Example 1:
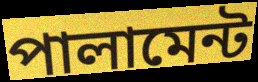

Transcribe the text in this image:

পালামেন্ট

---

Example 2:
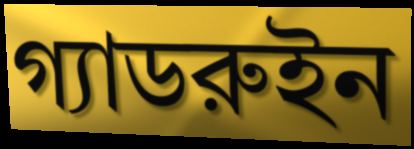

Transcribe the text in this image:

গ্যাডরুইন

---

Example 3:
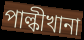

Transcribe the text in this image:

পাল্কীখানা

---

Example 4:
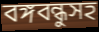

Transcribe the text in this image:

বঙ্গবন্ধুসহ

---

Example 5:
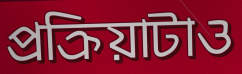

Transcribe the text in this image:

প্রক্রিয়াটাও